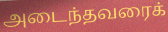
அடைந்தவரைக்